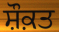
ਸ਼ੌਕ਼ਤ